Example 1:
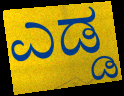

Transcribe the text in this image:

ಎಡ್ಡ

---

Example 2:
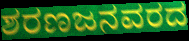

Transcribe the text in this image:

ಶರಣಜನವರದ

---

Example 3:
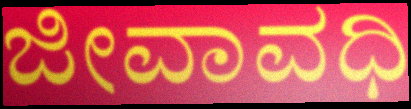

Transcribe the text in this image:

ಜೀವಾವಧಿ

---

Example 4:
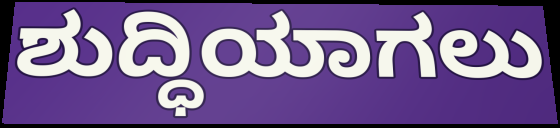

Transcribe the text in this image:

ಶುದ್ಧಿಯಾಗಲು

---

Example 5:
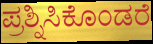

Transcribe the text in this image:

ಪ್ರಶ್ನಿಸಿಕೊಂಡರೆ